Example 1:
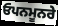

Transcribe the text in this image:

ਓਪਨਮੂਨਰੇ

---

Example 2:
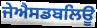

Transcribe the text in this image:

ਜੇਐਸਡਬਲਿਊ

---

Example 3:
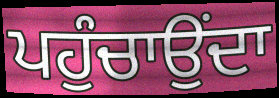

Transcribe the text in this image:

ਪਹੁੰਚਾਉਂਦਾ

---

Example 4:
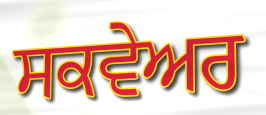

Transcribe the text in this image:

ਸਕਵੇਅਰ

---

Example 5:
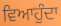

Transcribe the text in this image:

ਵਿਆਹੁੰਦਾ